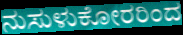
ನುಸುಳುಕೋರರಿಂದ